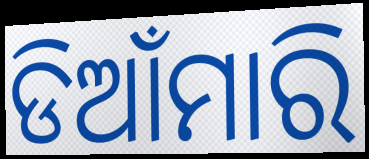
ଡିଆଁମାରି